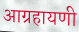
आग्रहायणी